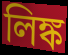
লিঙ্ক